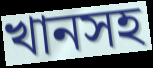
খানসহ